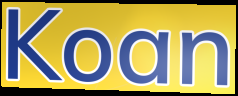
Koan